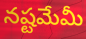
నష్టమేమీ